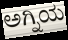
ಅಗ್ನಿಯ